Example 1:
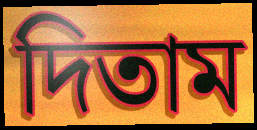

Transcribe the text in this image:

দিতাম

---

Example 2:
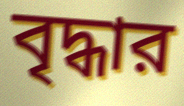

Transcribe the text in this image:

বৃদ্ধার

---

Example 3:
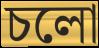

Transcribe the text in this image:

চলো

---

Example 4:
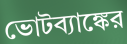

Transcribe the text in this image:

ভোটব্যাঙ্কের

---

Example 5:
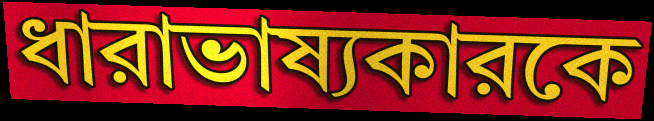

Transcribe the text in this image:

ধারাভাষ্যকারকে